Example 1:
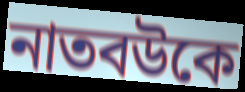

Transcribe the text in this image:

নাতবউকে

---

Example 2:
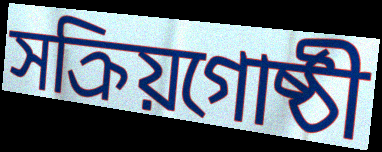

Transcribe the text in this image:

সক্রিয়গোষ্ঠী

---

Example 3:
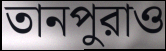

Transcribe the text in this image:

তানপুরাও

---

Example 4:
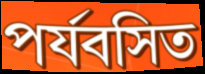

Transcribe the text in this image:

পর্যবসিত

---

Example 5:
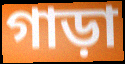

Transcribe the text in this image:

গাড়া